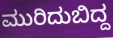
ಮುರಿದುಬಿದ್ದ